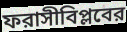
ফরাসীবিপ্লবের